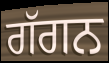
ਗੱਗਨ